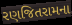
રણજિતરામના